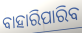
ବାହାରିପାରିବ